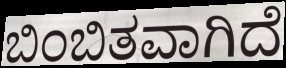
ಬಿಂಬಿತವಾಗಿದೆ